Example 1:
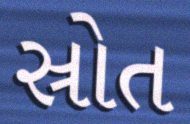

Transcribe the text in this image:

સ્રોત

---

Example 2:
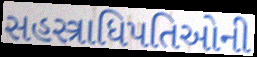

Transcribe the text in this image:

સહસ્ત્રાધિપતિઓની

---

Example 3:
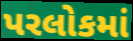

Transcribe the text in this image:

પરલોકમાં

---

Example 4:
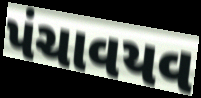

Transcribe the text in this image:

પંચાવયવ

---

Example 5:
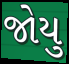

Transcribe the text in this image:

જોયુ